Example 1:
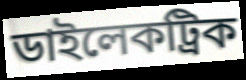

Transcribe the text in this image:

ডাইলেকট্রিক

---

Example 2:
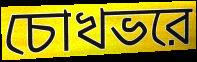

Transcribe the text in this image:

চোখভরে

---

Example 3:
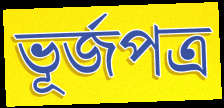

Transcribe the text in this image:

ভূর্জপত্র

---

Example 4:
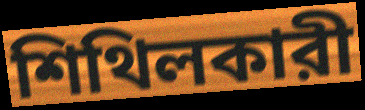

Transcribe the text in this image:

শিথিলকারী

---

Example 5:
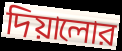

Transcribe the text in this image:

দিয়ালোর